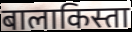
बालाकिस्ता